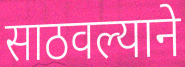
साठवल्याने